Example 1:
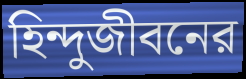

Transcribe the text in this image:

হিন্দুজীবনের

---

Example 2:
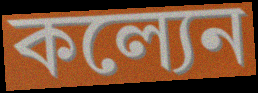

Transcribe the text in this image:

কল্যেন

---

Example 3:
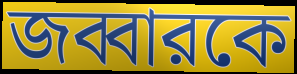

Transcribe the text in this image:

জব্বারকে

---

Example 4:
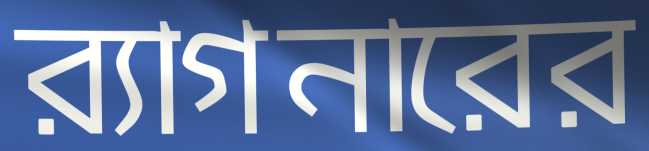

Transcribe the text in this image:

র‍্যাগনারের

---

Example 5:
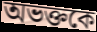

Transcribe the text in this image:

অভক্তকে